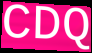
CDQ